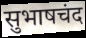
सुभाषचंद